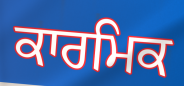
ਕਾਰਮਿਕ